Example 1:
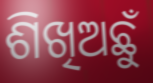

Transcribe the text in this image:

ଶିଖିଅଛୁଁ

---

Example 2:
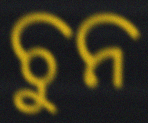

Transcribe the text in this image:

ଚୁନ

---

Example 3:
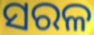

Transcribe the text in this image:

ସରଳ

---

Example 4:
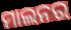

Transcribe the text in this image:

ମାଲନର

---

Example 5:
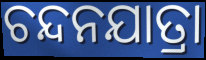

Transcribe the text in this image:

ଚନ୍ଦନଯାତ୍ରା